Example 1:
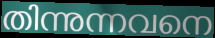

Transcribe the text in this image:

തിന്നുന്നവനെ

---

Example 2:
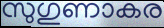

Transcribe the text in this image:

സുഗുണാകര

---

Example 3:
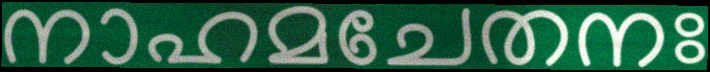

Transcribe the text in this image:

നാഹമചേതനഃ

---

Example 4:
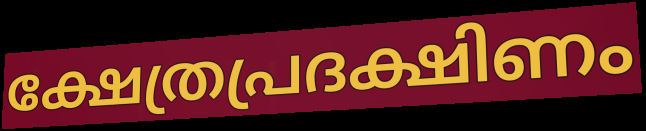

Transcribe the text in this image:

ക്ഷേത്രപ്രദക്ഷിണം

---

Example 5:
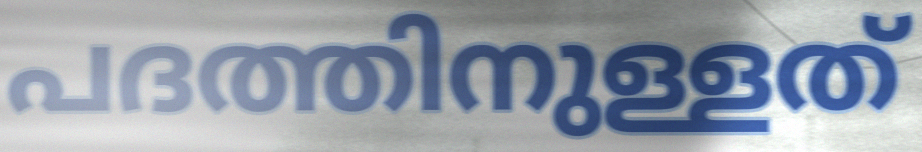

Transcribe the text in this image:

പദത്തിനുള്ളത്